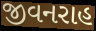
જીવનરાહ